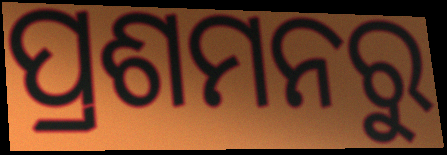
ପ୍ରଶମନରୁ